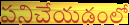
పనిచేయడంలో